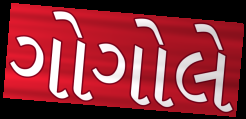
ગોગોલે